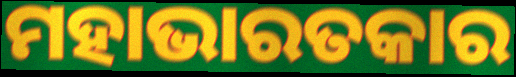
ମହାଭାରତକାର